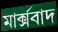
মার্ক্সবাদ